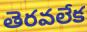
తెరవలేక